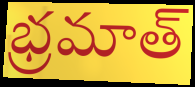
భ్రమాత్